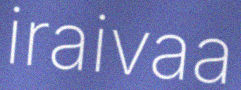
iraivaa